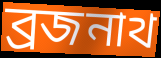
ব্রজনাথ